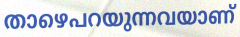
താഴെപറയുന്നവയാണ്